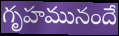
గృహమునందే